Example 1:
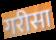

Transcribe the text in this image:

गरीसा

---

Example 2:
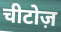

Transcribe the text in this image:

चीटोज़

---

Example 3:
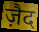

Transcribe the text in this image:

ज़ैद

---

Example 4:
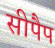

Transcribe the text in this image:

सीपैप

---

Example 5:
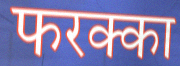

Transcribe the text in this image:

फरक्का